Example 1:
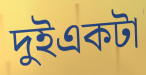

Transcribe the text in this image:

দুইএকটা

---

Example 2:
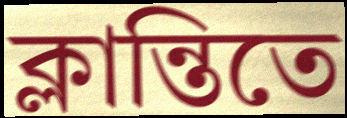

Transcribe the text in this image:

ক্লান্তিতে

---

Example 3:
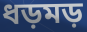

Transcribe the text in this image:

ধড়মড়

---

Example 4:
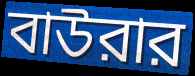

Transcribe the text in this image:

বাউরার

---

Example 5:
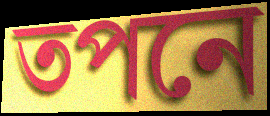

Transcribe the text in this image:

তপনে